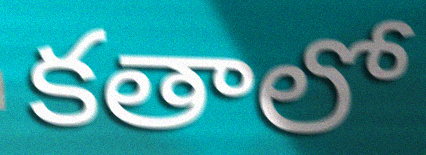
కతాలో